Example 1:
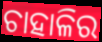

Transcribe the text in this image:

ଚାହାଳିର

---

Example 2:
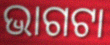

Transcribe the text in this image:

ଭାଗଟା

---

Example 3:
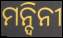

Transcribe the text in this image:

ମନ୍ଦିନୀ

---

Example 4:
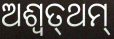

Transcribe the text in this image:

ଅଶ୍ୱତ୍‌ଥମ୍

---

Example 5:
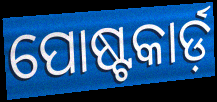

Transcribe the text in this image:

ପୋଷ୍ଟକାର୍ଡ଼